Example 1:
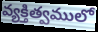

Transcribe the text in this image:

వ్యక్తిత్వములో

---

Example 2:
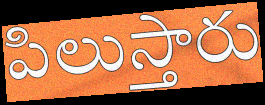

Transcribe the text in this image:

పిలుస్తారు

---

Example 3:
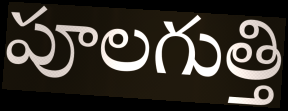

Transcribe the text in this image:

పూలగుత్తి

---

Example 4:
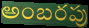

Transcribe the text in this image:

అంబరపు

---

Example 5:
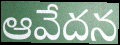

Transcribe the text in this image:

ఆవేదన